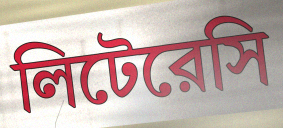
লিটেরেসি